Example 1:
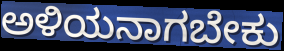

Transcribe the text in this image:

ಅಳಿಯನಾಗಬೇಕು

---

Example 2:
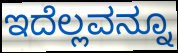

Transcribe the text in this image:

ಇದೆಲ್ಲವನ್ನೂ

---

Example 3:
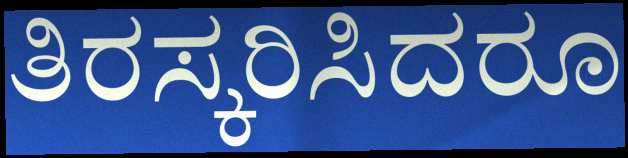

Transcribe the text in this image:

ತಿರಸ್ಕರಿಸಿದರೂ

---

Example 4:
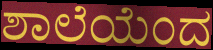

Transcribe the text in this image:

ಶಾಲೆಯೆಂದ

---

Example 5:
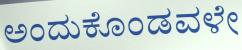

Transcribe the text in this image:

ಅಂದುಕೊಂಡವಳೇ